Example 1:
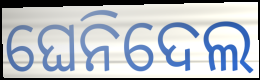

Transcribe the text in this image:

ଘେନିଦେଲ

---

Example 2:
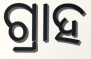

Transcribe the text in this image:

ଗ୍ରାହ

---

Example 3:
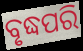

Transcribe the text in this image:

ବୃଦ୍ଧପରି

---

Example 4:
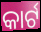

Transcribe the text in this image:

କାର୍ଟ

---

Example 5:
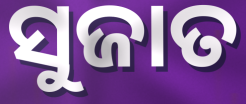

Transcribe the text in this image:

ସୁଜାତ